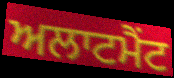
ਅਲਾਟਮੈਂਟ